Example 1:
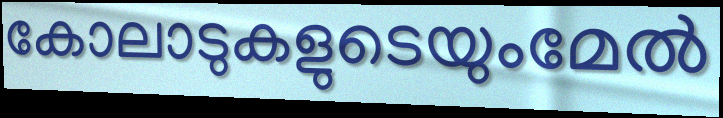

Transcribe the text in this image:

കോലാടുകളുടെയുംമേൽ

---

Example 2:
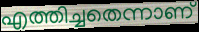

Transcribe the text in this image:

എത്തിച്ചതെന്നാണ്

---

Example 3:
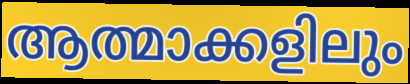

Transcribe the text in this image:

ആത്മാക്കളിലും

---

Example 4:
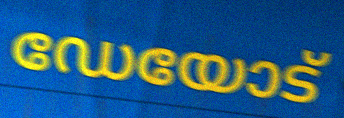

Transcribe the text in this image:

ഡേയോട്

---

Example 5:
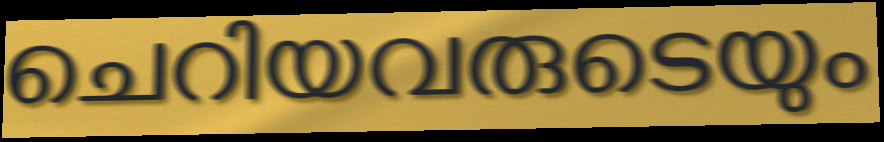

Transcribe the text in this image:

ചെറിയവരുടെയും